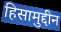
हिसामुद्दीन